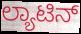
ಲ್ಯಾಟಿನ್